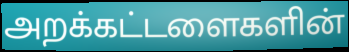
அறக்கட்டளைகளின்